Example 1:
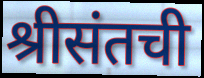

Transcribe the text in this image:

श्रीसंतची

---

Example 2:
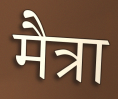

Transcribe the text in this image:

मैत्रा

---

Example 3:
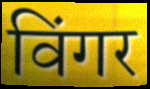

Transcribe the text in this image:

विंगर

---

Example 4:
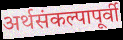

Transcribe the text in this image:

अर्थसंकल्पापूर्वी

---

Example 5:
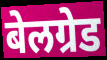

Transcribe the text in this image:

बेलग्रेड